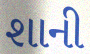
શાની